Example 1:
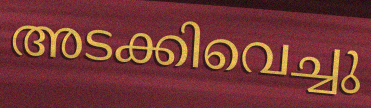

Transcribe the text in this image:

അടക്കിവെച്ചു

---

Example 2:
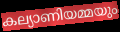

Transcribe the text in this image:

കല്യാണിയമ്മയും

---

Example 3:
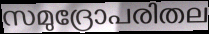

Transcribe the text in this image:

സമുദ്രോപരിതല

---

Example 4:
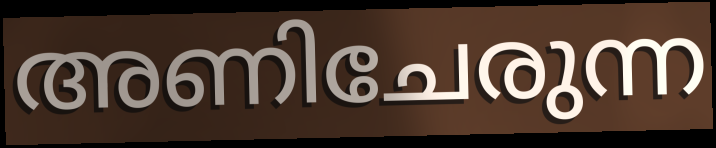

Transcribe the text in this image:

അണിചേരുന്ന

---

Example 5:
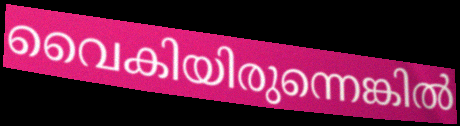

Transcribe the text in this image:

വൈകിയിരുന്നെങ്കിൽ